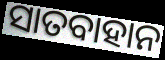
ସାତବାହାନ